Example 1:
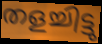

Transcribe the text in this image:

തളച്ചിട്ടു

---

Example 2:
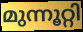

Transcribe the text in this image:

മുന്നൂറ്റി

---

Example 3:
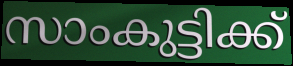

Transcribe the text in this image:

സാംകുട്ടിക്ക്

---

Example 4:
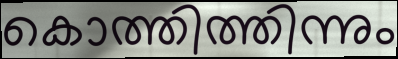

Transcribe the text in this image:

കൊത്തിത്തിന്നും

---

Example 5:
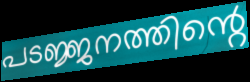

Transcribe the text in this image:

പടജ്ജനത്തിന്റെ